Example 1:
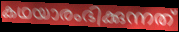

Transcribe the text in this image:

കഥയാരംഭിക്കുന്നത്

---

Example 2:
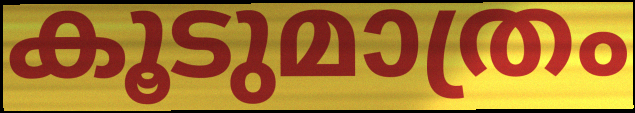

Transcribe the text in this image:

കൂടുമാത്രം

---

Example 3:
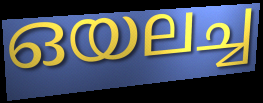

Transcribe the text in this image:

ഒയലച്ച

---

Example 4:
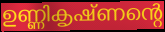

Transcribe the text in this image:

ഉണ്ണികൃഷ്‌ണന്റെ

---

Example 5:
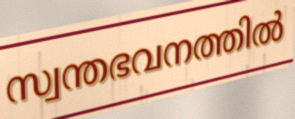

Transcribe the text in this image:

സ്വന്തഭവനത്തിൽ